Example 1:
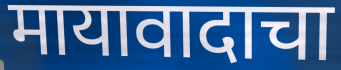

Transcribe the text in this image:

मायावादाचा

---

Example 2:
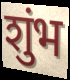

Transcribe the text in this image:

शुंभ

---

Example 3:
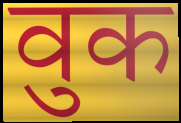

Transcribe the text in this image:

वुक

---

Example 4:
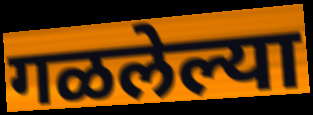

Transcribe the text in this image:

गळलेल्या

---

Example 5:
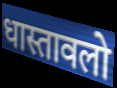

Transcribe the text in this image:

धास्तावलो